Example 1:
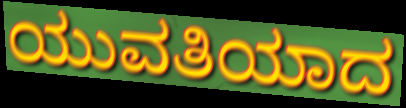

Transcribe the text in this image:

ಯುವತಿಯಾದ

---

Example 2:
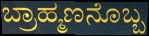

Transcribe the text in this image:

ಬ್ರಾಹ್ಮಣನೊಬ್ಬ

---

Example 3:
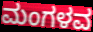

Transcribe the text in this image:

ಮಂಗಳವ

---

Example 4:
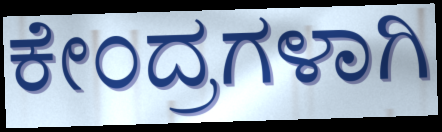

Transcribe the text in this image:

ಕೇಂದ್ರಗಳಾಗಿ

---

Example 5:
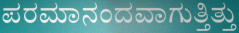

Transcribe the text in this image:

ಪರಮಾನಂದವಾಗುತ್ತಿತ್ತು